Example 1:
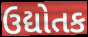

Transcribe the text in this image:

ઉદ્યોતક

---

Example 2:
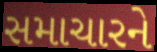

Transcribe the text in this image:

સમાચારને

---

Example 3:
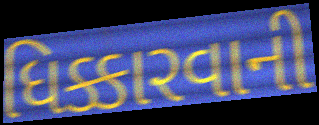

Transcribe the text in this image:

ધિક્કારવાની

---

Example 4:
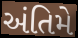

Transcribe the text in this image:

અંતિમે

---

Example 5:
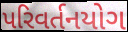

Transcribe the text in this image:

પરિવર્તનયોગ